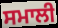
ਸਮਾਲੀ